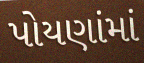
પોયણાંમાં